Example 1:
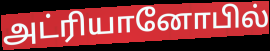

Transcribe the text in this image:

அட்ரியானோபில்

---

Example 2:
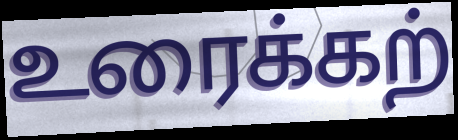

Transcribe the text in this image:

உரைக்கற்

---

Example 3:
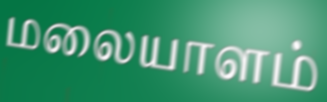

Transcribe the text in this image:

மலையாளம்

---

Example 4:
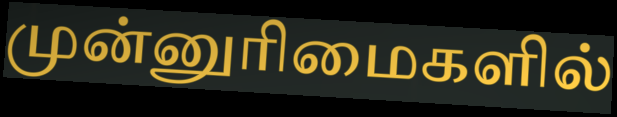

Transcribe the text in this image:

முன்னுரிமைகளில்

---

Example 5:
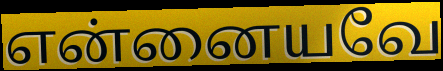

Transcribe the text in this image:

என்னையவே